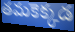
తమకెక్కడ